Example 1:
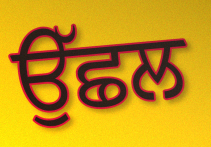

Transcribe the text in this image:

ਉੱਛਲ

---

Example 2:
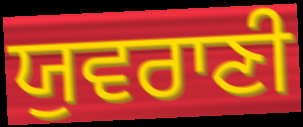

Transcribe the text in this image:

ਯੁਵਰਾਣੀ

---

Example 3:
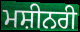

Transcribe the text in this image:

ਮਸ਼ੀਨਰੀ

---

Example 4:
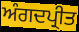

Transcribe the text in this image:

ਅੰਗਦਪ੍ਰੀਤ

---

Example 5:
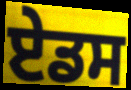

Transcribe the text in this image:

ਏਡਸ